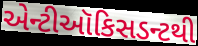
એન્ટીઑકિસડન્ટથી